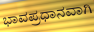
ಭಾವಪ್ರಧಾನವಾಗಿ